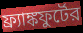
ফ্র্যাঙ্কফুর্টের